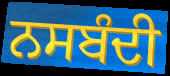
ਨਸਬੰਦੀ